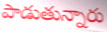
పాడుతున్నారు